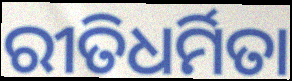
ରୀତିଧର୍ମିତା